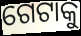
ଗେଟାକୁ